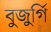
বুজুর্গি